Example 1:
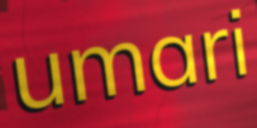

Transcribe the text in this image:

umari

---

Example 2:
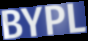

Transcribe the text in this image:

BYPL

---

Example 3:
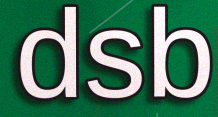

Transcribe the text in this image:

dsb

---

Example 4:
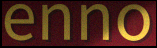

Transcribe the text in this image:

enno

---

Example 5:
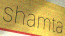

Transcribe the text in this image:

shamta